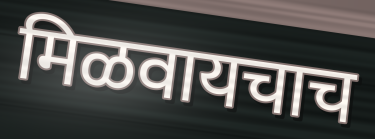
मिळवायचाच